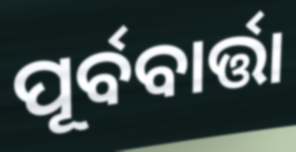
ପୂର୍ବବାର୍ତ୍ତା